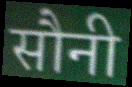
सौनी